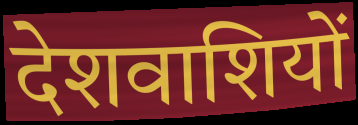
देशवाशियों